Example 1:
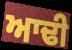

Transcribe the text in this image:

ਆਢੀ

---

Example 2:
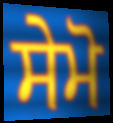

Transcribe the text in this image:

ਸੇਮੋ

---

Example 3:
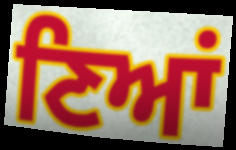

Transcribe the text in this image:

ਣਿਆਂ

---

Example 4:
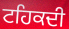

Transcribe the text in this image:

ਟਹਿਕਦੀ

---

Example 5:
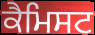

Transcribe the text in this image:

ਕੈਮਿਸਟ